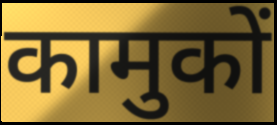
कामुकों